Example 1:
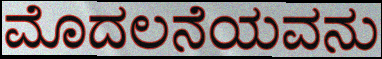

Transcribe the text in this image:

ಮೊದಲನೆಯವನು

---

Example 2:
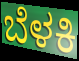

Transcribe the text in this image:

ಬೆಳಕಿ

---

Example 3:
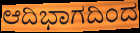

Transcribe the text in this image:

ಆದಿಭಾಗದಿಂದ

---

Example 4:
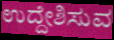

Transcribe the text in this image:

ಉದ್ದೇಶಿಸುವ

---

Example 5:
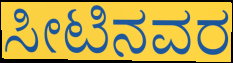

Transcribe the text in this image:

ಸೀಟಿನವರ